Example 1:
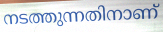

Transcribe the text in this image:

നടത്തുന്നതിനാണ്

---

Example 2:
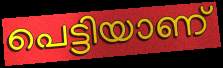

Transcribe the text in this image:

പെട്ടിയാണ്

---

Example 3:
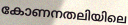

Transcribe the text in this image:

കോണനതലിയിലെ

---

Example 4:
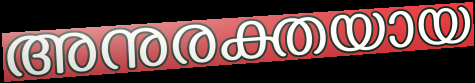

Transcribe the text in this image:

അനുരക്തയായ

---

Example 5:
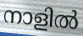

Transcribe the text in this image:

നാളിൽ